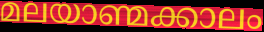
മലയാണ്മക്കാലം